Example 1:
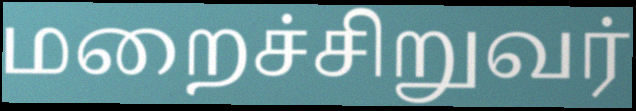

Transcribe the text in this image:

மறைச்சிறுவர்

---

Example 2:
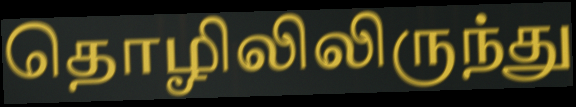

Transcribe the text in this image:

தொழிலிலிருந்து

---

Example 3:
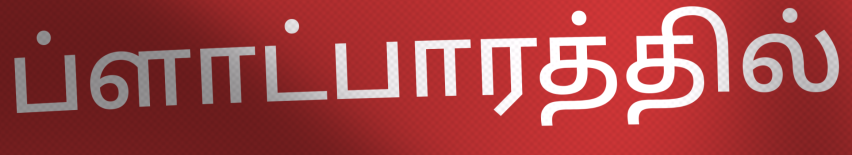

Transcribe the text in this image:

ப்ளாட்பாரத்தில்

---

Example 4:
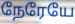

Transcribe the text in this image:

நேரேயே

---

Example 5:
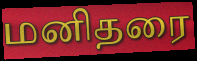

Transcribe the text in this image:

மனிதரை